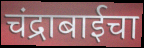
चंद्राबाईचा